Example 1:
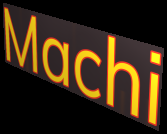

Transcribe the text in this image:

Machi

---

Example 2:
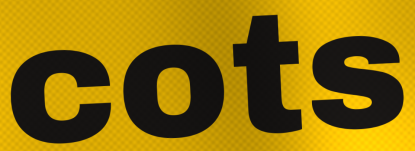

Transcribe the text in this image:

cots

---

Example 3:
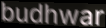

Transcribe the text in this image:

budhwar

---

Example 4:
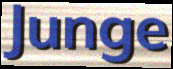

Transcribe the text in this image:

Junge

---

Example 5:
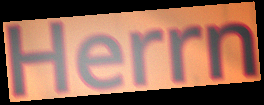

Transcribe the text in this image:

Herrn